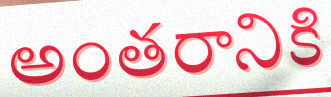
అంతరానికి